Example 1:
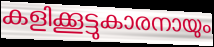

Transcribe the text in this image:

കളിക്കൂട്ടുകാരനായും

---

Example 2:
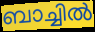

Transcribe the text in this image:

ബാച്ചിൽ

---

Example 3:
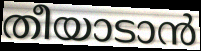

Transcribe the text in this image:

തീയാടാൻ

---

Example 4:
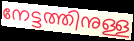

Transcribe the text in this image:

നേട്ടത്തിനുള്ള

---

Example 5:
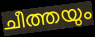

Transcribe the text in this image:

ചീത്തയും